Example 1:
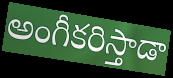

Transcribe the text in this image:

అంగీకరిస్తాడా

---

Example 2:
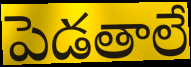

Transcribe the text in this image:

పెడతాలే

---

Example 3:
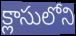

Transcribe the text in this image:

క్లాసులోని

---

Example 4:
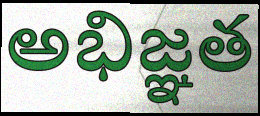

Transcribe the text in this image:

అభిజ్ఞత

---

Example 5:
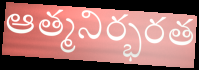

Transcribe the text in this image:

ఆత్మనిర్భరత